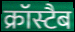
क्रॉस्टैब